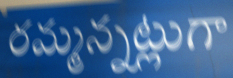
రమ్మన్నట్లుగా